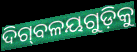
ଦିଗ୍‌ବଳୟଗୁଡ଼ିକୁ